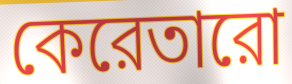
কেরেতারো